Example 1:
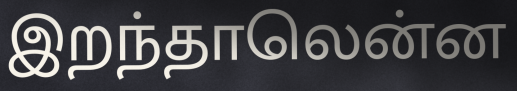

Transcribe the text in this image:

இறந்தாலென்ன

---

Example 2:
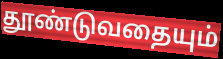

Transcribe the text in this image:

தூண்டுவதையும்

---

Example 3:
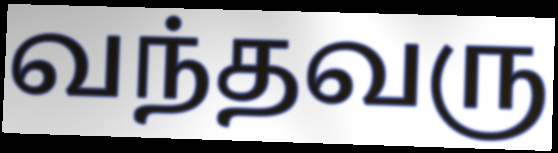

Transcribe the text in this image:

வந்தவரு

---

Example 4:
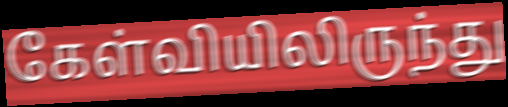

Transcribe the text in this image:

கேள்வியிலிருந்து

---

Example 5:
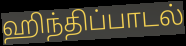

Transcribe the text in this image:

ஹிந்திப்பாடல்